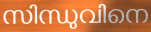
സിന്ധുവിനെ